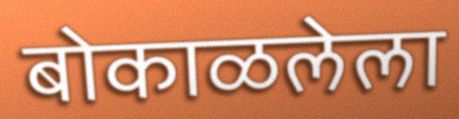
बोकाळलेला